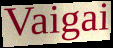
Vaigai